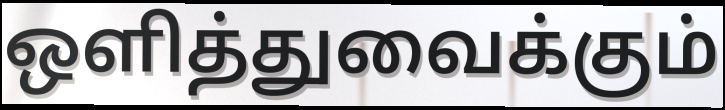
ஒளித்துவைக்கும்